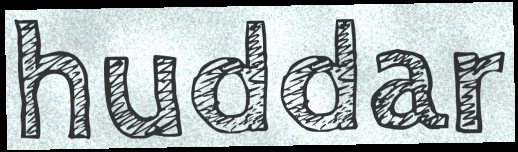
huddar